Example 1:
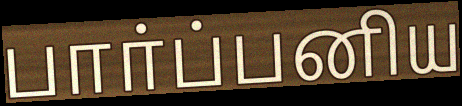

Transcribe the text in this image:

பார்ப்பனிய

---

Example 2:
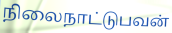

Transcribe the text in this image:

நிலைநாட்டுபவன்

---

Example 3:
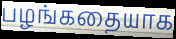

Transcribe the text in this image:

பழங்கதையாக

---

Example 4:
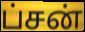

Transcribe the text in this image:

ப்சன்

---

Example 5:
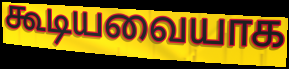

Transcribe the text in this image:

கூடியவையாக